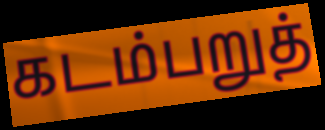
கடம்பறுத்